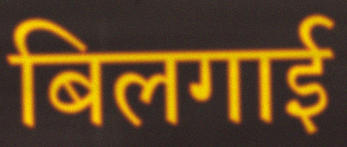
बिलगाई